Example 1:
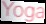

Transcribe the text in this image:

Yoga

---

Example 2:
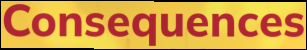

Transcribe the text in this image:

Consequences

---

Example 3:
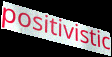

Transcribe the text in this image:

positivistic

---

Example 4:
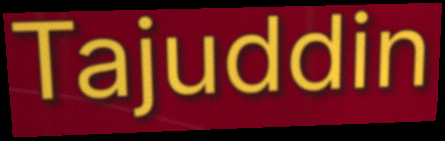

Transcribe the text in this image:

Tajuddin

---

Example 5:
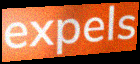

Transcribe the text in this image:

expels